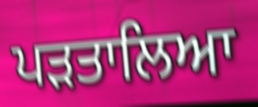
ਪੜਤਾਲਿਆ